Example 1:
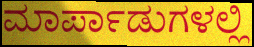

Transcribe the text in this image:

ಮಾರ್ಪಾಡುಗಳಲ್ಲಿ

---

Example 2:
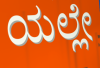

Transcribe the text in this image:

ಯಲ್ಲೇ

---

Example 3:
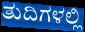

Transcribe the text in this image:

ತುದಿಗಳಲ್ಲಿ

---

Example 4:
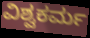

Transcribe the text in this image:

ವಿಶ್ವಕರ್ಮ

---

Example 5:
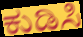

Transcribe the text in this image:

ಕುಡಿಸಿ